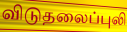
விடுதலைப்புலி